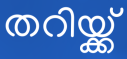
തറിയ്ക്ക്